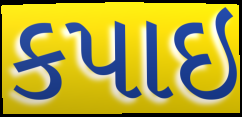
કપાઇ